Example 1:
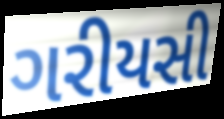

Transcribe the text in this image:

ગરીયસી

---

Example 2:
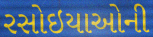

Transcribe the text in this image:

રસોઇયાઓની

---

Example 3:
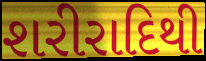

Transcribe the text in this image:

શરીરાદિથી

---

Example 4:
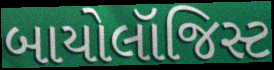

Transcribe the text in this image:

બાયોલૉજિસ્ટ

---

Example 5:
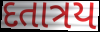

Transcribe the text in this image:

દતાત્રય